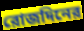
রোজদিনের